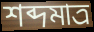
শব্দমাত্র